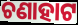
ଚଣାହାଟ